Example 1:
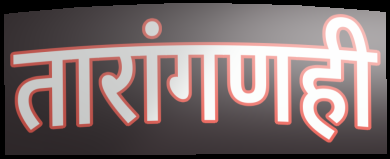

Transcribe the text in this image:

तारांगणही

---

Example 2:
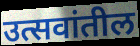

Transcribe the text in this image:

उत्सवांतील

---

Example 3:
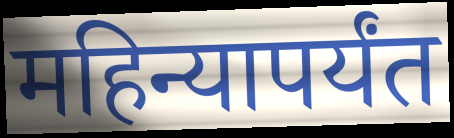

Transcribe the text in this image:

महिन्यापर्यंत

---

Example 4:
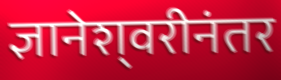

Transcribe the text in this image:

ज्ञानेश्वरीनंतर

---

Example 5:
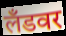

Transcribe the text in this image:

लँडवर